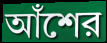
আঁশের